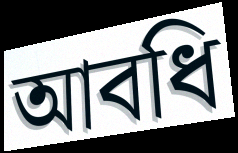
আবধি